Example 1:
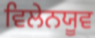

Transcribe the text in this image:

ਵਿਲੇਨਯੂਵ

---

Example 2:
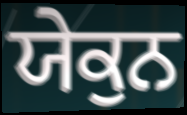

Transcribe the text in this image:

ਯੇਕੁਨ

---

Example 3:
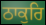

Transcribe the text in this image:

ਠਾਕੁਰਿ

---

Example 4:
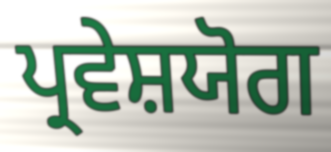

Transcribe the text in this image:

ਪ੍ਰਵੇਸ਼ਯੋਗ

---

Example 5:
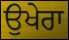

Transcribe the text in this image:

ਉਖੇਰਾ